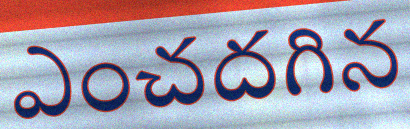
ఎంచదగిన